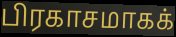
பிரகாசமாகக்